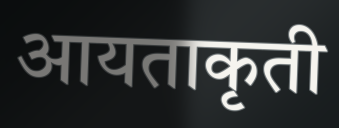
आयताकृती